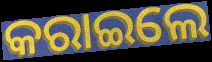
କରାଇଲେ